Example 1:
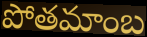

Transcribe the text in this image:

పోతమాంబ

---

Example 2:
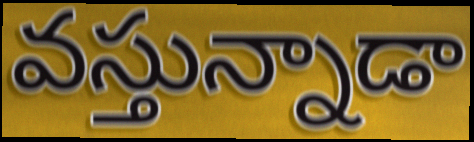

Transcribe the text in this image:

వస్తున్నాడా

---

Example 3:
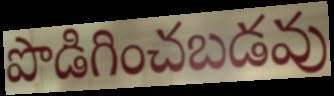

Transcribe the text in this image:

పొడిగించబడవు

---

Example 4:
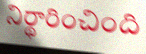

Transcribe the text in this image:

నిర్థారించింది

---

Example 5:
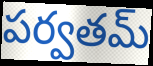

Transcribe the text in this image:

పర్వతమ్